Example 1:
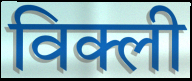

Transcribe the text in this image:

विक्ली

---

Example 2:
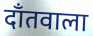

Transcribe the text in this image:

दाँतवाला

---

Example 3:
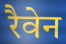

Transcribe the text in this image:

रैवेन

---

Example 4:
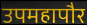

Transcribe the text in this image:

उपमहापौर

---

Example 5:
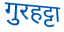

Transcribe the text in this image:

गुरहट्टा